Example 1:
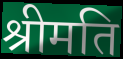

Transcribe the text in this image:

श्रीमति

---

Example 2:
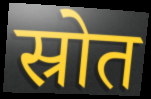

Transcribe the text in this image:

स्रोत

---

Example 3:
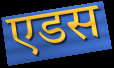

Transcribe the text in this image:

एडस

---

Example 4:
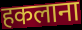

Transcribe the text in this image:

हकलाना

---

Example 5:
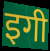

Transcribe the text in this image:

इगी